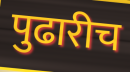
पुढारीच